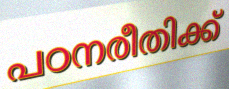
പഠനരീതിക്ക്